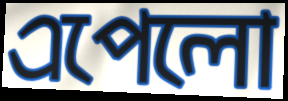
এপেলো